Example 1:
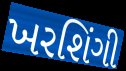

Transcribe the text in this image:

ખરશિંગી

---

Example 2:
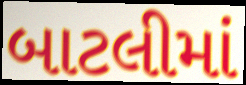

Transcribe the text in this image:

બાટલીમાં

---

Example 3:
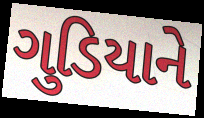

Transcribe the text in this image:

ગુડિયાને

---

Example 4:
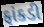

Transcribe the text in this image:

ફાંકડી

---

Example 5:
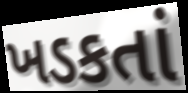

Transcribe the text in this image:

ખડકતાં